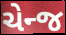
ચેન્જ